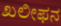
ಖಲೀಫನ